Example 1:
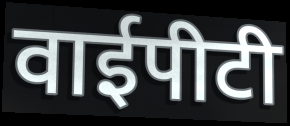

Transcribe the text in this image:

वाईपीटी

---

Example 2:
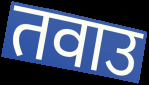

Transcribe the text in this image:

तवाउ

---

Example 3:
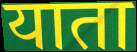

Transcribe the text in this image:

याता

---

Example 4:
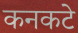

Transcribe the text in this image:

कनकटे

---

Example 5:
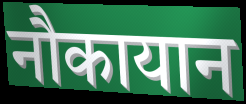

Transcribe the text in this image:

नौकायान